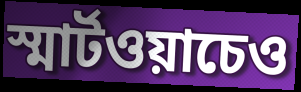
স্মার্টওয়াচেও